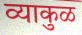
व्याकुळ